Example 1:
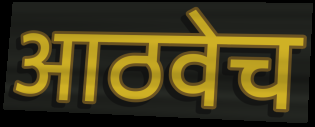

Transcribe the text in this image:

आठवेच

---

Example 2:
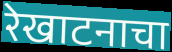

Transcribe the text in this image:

रेखाटनाचा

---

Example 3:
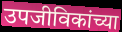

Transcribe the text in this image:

उपजीविकांच्या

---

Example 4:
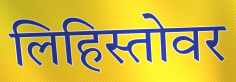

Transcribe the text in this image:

लिहिस्तोवर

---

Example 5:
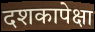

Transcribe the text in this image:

दशकापेक्षा